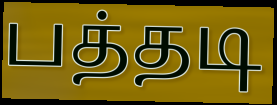
பத்தடி